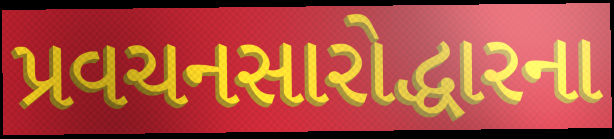
પ્રવચનસારોદ્ધારના